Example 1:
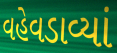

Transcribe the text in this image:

વહેવડાવ્યાં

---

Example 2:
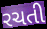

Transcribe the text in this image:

રચતી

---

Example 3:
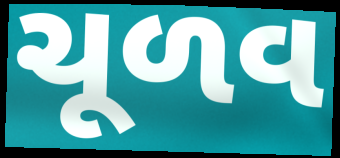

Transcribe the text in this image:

ચૂળવ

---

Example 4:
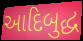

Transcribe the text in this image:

આદિબુદ્ધ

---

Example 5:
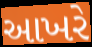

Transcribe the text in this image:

આખરે